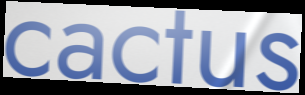
cactus